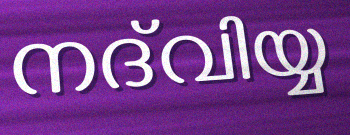
നദ്‌വിയ്യ